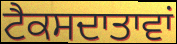
ਟੈਕਸਦਾਤਾਵਾਂ